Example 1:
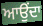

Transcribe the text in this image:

ਆਉਂਦਾ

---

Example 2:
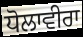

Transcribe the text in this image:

ਧੋਲਾਵੀਰਾ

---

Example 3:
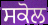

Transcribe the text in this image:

ਸਕੋਲ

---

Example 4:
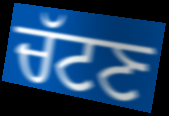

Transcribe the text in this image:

ਚੱਟਣ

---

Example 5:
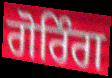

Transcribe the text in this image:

ਗੋਰਿੰਗ